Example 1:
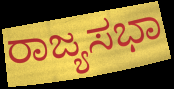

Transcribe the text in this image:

ರಾಜ್ಯಸಭಾ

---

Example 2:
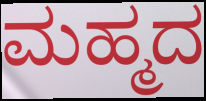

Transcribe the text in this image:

ಮಹ್ಮದ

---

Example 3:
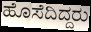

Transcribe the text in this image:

ಹೊಸೆದಿದ್ದರು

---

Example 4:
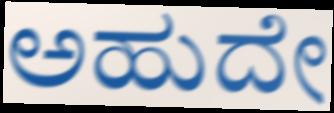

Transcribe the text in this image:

ಅಹುದೇ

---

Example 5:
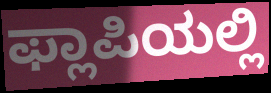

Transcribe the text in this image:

ಫ್ಲಾಪಿಯಲ್ಲಿ